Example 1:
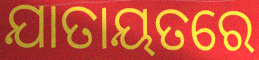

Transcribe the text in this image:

ଯାତାୟତରେ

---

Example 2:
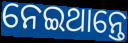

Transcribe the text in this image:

ନେଇଥାନ୍ତେ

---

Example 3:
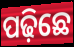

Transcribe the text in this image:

ପଢ଼ିଛେ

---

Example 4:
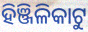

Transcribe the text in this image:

ହିଞ୍ଜିଳିକାଟୁ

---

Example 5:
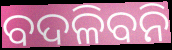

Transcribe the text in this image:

ବଦଳିବନି